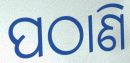
ପଠାଣି